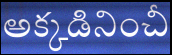
అక్కడినించీ